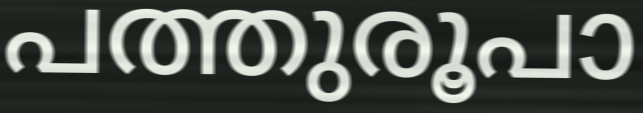
പത്തുരൂപാ